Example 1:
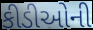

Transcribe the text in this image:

કીડીઓની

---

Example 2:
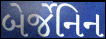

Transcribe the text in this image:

બેર્જેનિન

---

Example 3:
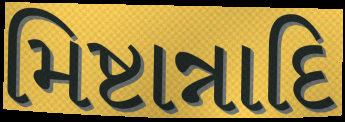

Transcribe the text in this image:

મિષ્ટાન્નાદિ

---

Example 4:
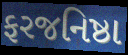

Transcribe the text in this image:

ફરજનિષ્ઠા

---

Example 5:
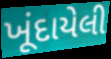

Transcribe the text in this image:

ખૂંદાયેલી